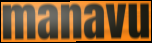
manavu